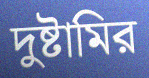
দুষ্টামির